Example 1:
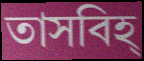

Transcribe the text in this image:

তাসবিহ্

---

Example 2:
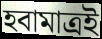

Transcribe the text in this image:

হবামাত্রই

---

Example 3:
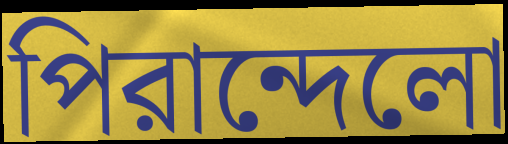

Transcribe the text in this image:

পিরান্দেলো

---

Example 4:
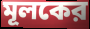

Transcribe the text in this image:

মূলকের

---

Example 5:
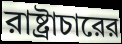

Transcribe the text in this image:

রাষ্ট্রাচারের